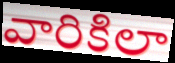
వారికిలా